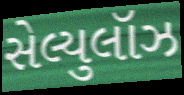
સેલ્યુલૉઝ